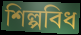
শিল্পবিধ